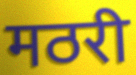
मठरी